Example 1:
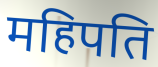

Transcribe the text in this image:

महिपति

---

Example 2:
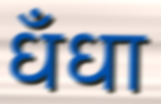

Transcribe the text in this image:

धँधा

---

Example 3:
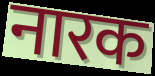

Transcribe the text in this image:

नारक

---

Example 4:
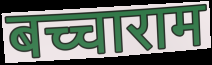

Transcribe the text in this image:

बच्चाराम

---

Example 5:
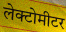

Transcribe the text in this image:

लेक्टोमीटर